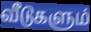
வீடுகளும்